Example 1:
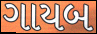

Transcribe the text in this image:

ગાયબ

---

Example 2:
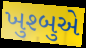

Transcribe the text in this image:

ખુશ્બુએ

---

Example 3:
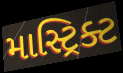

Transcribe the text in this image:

માસ્ટ્રિક્ટ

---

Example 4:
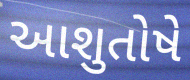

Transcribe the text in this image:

આશુતોષે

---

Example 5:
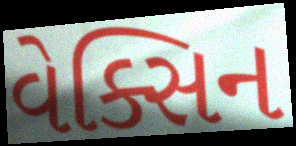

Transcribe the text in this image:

વેક્સિન